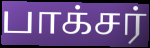
பாக்சர்